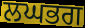
ਲਘਭਗ